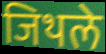
जिथले